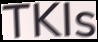
TKIs